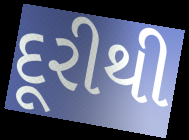
દૂરીથી